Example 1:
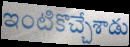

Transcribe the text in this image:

ఇంటికొచ్చేశాడు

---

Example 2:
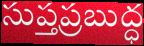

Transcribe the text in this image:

సుప్తప్రబుద్ధ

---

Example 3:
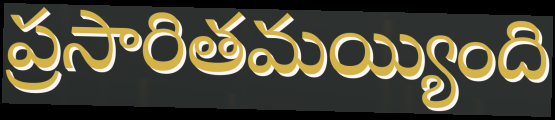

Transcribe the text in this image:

ప్రసారితమయ్యింది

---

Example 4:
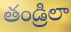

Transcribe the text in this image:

తండ్రిలా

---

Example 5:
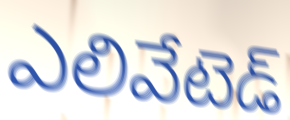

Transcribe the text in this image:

ఎలివేటెడ్